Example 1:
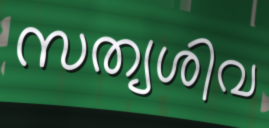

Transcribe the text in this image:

സത്യശിവ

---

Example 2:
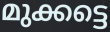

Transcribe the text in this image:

മുക്കട്ടെ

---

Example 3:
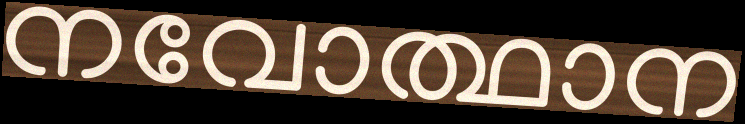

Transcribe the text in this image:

നവോത്ഥാന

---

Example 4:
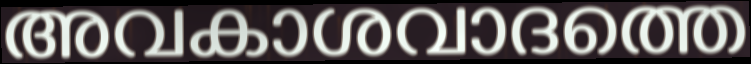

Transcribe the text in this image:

അവകാശവാദത്തെ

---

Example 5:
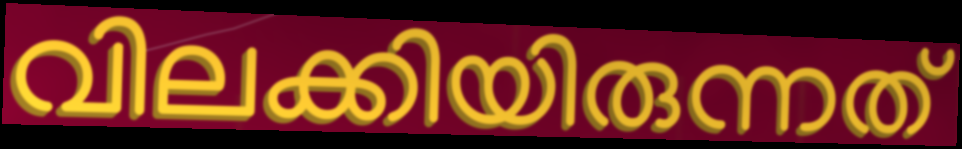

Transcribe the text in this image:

വിലക്കിയിരുന്നത്